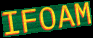
IFOAM